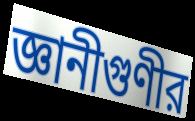
জ্ঞানীগুণীর